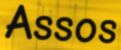
Assos